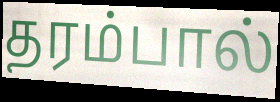
தரம்பால்